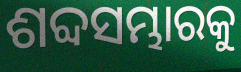
ଶବ୍ଦସମ୍ଭାରକୁ